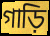
গাড়ি